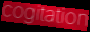
cogitation